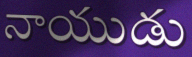
నాయుడు